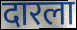
दारला